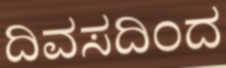
ದಿವಸದಿಂದ